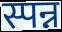
स्पन्न